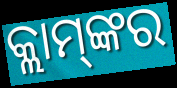
କ୍ଲାମ୍‌ଙ୍କର